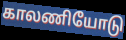
காலணியோடு